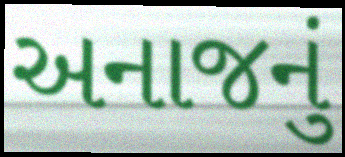
અનાજનું